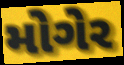
મોગેર